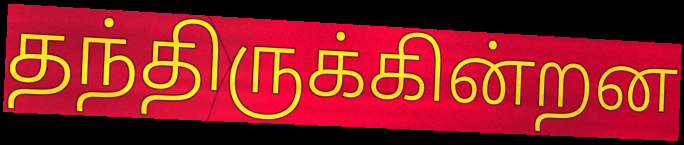
தந்திருக்கின்றன